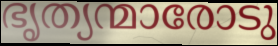
ഭൃത്യന്മാരോടു